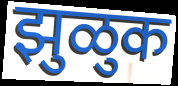
झुळुक